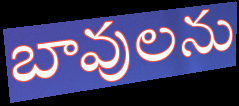
బావులను